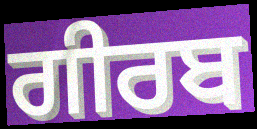
ਗੀਰਬ